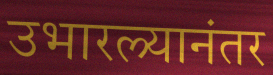
उभारल्यानंतर